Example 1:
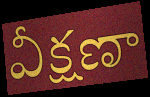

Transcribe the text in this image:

వీక్షణా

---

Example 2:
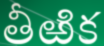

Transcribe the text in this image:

తీఱిక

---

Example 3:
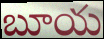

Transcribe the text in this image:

బూయ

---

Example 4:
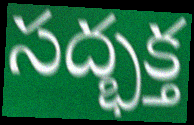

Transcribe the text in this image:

సద్భక్త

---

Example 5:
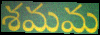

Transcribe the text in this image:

శమమ